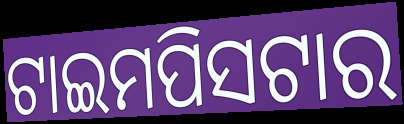
ଟାଇମପିସଟାର